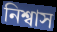
নিশ্বাস